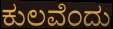
ಕುಲವೆಂದು